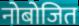
नोबोजित